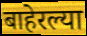
बाहेरल्या